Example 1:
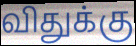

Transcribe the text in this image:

விதுக்கு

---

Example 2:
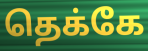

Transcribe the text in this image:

தெக்கே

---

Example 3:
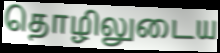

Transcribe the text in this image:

தொழிலுடைய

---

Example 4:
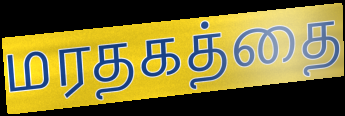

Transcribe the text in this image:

மரதகத்தை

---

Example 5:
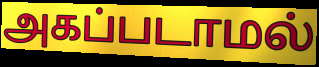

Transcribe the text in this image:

அகப்படாமல்